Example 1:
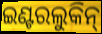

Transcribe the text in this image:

ଇଣ୍ଟରଲୁକିନ୍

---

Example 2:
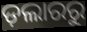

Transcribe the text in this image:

ଡ଼ଲାରରୁ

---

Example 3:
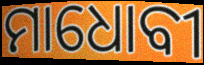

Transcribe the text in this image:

ମାଧୋବୀ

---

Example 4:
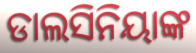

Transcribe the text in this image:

ଡାଲସିନିୟାଙ୍କ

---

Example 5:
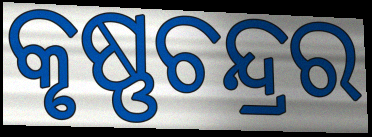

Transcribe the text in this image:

କୃଷ୍ଣଚନ୍ଦ୍ରର